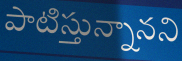
పాటిస్తున్నానని